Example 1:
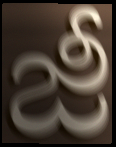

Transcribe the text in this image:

జీ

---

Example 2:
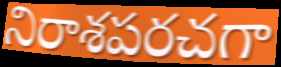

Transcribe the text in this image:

నిరాశపరచగా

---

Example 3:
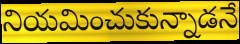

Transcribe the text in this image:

నియమించుకున్నాడనే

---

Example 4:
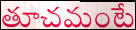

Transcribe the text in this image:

తూచమంటే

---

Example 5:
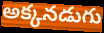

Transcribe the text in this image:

అక్కనడుగు